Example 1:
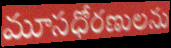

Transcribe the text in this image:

మూసధోరణులను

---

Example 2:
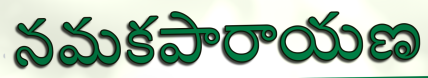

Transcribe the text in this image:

నమకపారాయణ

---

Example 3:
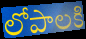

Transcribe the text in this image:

లోపాలకి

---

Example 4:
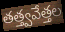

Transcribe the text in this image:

తత్త్వవేత్తల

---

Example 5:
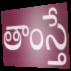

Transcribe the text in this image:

తాంస్తే